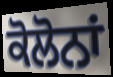
ਕੋਲੋਨਾਂ